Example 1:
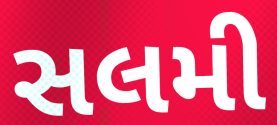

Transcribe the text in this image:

સલમી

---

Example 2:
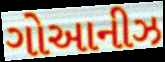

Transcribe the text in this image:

ગોઆનીઝ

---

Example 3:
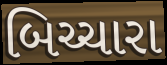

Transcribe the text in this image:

બિચ્ચારા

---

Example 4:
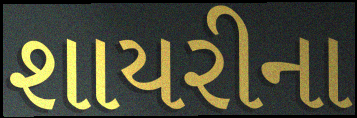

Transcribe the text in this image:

શાયરીના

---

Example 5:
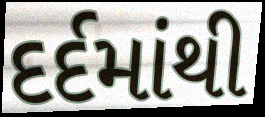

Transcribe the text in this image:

દર્દમાંથી